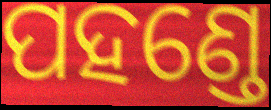
ପହଣ୍ଡେ